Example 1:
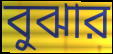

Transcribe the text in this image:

বুঝার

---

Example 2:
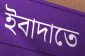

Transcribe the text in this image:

ইবাদাতে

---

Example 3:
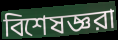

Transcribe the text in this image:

বিশেষজ্ঞরা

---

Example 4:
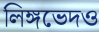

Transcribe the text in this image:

লিঙ্গভেদও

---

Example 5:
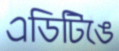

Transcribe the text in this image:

এডিটিঙে